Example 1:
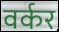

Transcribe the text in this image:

वर्कर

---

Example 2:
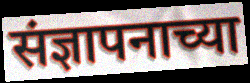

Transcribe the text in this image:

संज्ञापनाच्या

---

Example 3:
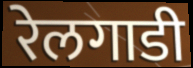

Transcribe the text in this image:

रेलगाडी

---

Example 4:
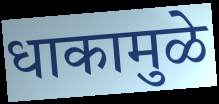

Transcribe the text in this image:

धाकामुळे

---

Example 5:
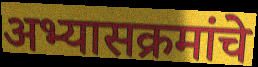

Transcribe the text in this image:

अभ्यासक्रमांचे